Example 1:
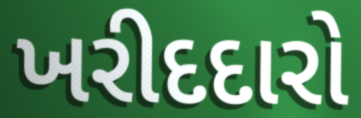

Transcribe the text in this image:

ખરીદદારો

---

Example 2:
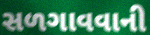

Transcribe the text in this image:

સળગાવવાની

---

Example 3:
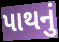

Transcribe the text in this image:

પાથનું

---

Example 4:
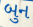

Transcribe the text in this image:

બુન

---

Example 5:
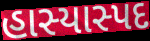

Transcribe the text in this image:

હાસ્યાસ્પદ